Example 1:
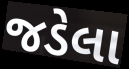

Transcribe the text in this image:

જડેલા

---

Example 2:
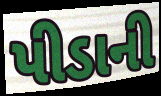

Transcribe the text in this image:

પીડાની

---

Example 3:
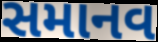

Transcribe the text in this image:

સમાનવ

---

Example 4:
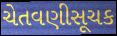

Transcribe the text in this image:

ચેતવણીસૂચક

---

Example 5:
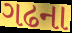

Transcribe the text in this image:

ગઢના